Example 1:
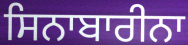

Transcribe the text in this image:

ਸਿਨਾਬਾਰੀਨਾ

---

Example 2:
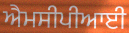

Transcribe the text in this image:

ਐਮਸੀਪੀਆਈ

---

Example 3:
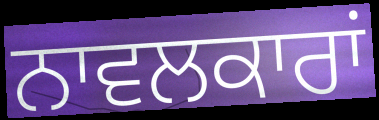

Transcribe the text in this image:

ਨਾਵਲਕਾਰਾਂ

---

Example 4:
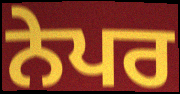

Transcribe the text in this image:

ਨੇਪਰ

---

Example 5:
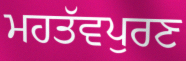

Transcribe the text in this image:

ਮਹਤੱਵਪੁਰਣ